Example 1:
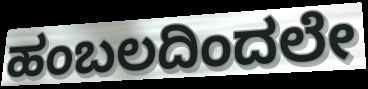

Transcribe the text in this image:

ಹಂಬಲದಿಂದಲೇ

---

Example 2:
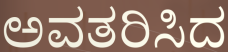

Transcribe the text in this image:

ಅವತರಿಸಿದ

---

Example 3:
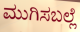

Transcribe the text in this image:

ಮುಗಿಸಬಲ್ಲೆ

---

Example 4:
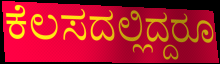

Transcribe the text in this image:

ಕೆಲಸದಲ್ಲಿದ್ದರೂ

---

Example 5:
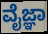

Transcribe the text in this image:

ವೈಜ್ಞಾ